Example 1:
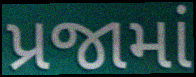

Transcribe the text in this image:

પ્રજામાં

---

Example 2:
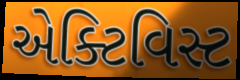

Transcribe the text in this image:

એક્ટિવિસ્ટ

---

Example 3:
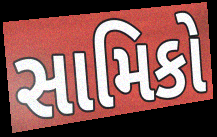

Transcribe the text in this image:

સામિકો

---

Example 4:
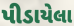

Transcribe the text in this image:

પીડાયેલા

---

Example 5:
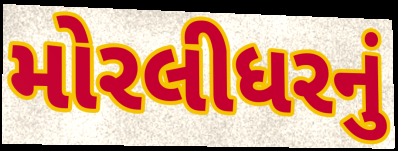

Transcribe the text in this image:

મોરલીધરનું